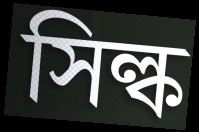
সিল্ক